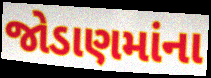
જોડાણમાંના